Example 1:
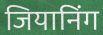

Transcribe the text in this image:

जियानिंग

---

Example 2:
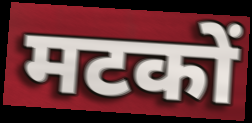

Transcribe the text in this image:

मटकों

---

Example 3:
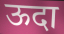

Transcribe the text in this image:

ऊदा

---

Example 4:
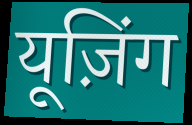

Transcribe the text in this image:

यूज़िंग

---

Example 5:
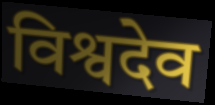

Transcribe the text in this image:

विश्वदेव